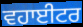
ਵਹਾਈਟਰ